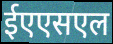
ईएएसएल